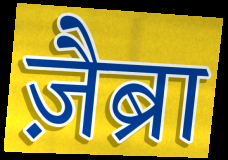
ज़ैब्रा